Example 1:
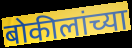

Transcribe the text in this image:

बोकीलांच्या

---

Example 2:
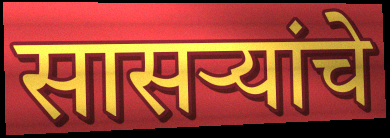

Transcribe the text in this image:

सासर्‍यांचे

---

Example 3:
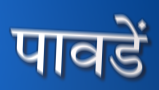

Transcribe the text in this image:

पावडें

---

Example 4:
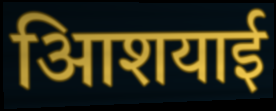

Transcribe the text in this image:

आिशयाई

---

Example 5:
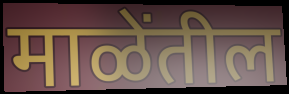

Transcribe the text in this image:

माळेंतील